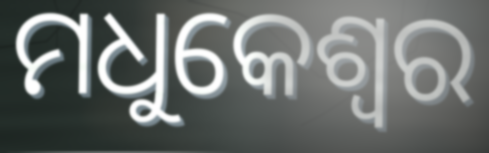
ମଧୁକେଶ୍ୱର